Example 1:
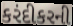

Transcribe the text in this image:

કરંદીકરની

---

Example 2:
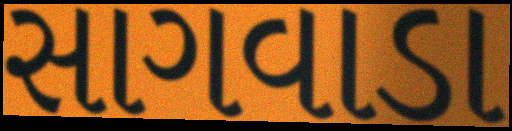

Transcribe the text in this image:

સાગવાડા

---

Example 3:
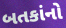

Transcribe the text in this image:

બતકાંનો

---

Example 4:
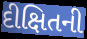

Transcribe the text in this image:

દીક્ષિતની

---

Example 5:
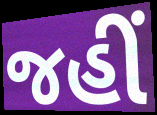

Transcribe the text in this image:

જહીં